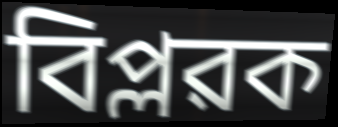
বিপ্লৱক